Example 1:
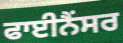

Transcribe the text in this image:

ਫਾਈਨੈਂਸਰ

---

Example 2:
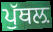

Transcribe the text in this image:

ਪੁੱਥਲ਼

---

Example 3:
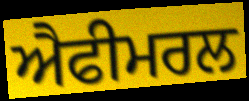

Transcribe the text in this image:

ਐਫੀਮਰਲ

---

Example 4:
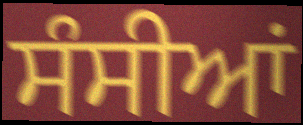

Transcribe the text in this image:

ਸੰਸੀਆਂ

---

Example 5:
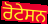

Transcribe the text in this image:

ਰੋਟੇਸਨ